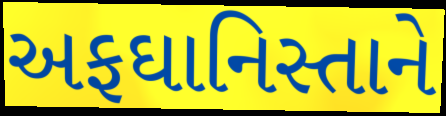
અફઘાનિસ્તાને